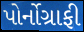
પોર્નોગ્રાફી